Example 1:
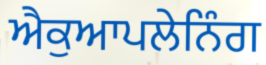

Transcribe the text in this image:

ਐਕੁਆਪਲੇਨਿੰਗ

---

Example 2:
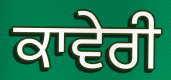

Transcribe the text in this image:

ਕਾਵੇਰੀ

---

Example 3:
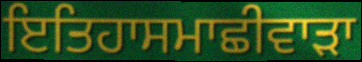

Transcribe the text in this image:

ਇਤਿਹਾਸਮਾਛੀਵਾੜਾ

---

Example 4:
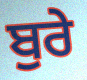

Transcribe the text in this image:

ਬੁਰੇ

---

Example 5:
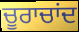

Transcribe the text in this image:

ਚੂਰਾਚਾਂਦ